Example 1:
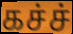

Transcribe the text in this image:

கச்ச்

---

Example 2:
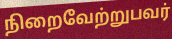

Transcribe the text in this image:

நிறைவேற்றுபவர்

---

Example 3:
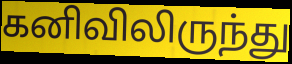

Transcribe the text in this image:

கனிவிலிருந்து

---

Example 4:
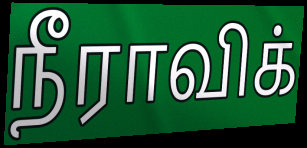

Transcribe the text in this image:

நீராவிக்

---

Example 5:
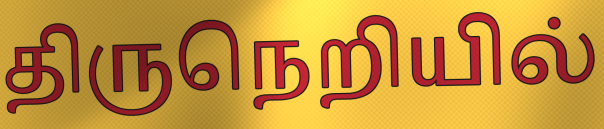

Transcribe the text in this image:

திருநெறியில்